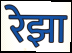
रेझा